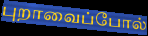
புறாவைப்போல்